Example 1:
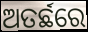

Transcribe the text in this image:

ଅତର୍ଛରେ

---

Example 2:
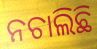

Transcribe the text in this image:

ନଚାଲିଛି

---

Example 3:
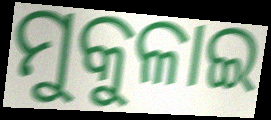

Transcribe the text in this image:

ମୁକୁଳାଇ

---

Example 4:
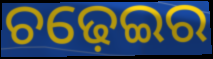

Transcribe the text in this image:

ଚଢ଼େଇର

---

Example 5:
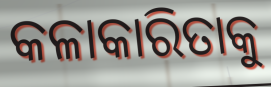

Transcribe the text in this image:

କଳାକାରିତାକୁ